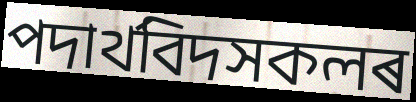
পদাৰ্থবিদসকলৰ